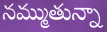
నమ్ముతున్నా